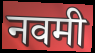
नवमी